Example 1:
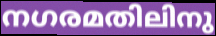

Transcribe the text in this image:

നഗരമതിലിനു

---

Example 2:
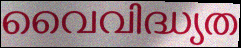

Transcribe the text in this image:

വൈവിദ്ധ്യത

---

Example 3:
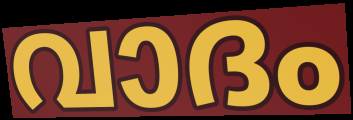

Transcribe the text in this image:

വാദം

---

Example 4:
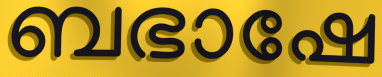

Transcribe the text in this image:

ബഭാഷേ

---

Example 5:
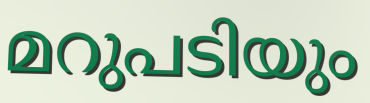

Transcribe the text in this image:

മറുപടിയും